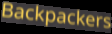
Backpackers